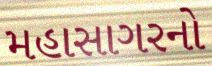
મહાસાગરનો